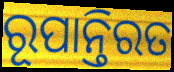
ରୂପାନ୍ତିରତ